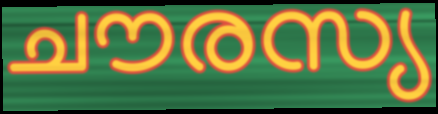
ചൗരസ്യ